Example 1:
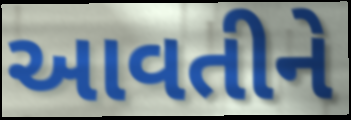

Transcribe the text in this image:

આવતીને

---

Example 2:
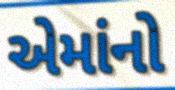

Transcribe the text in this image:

એમાંનો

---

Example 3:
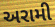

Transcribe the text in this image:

અરામી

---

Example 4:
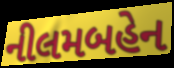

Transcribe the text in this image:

નીલમબહેન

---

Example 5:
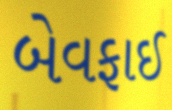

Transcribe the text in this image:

બેવફાઈ